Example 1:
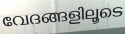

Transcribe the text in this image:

വേദങ്ങളിലൂടെ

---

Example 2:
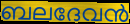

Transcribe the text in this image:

ബലദേവൻ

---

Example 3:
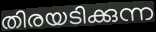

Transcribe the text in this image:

തിരയടിക്കുന്ന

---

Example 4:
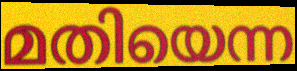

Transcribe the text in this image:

മതിയെന്ന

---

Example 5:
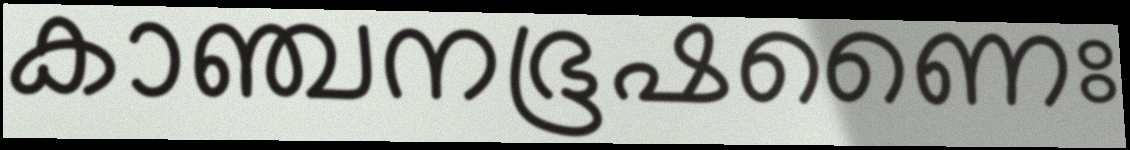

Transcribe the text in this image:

കാഞ്ചനഭൂഷണൈഃ